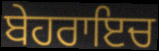
ਬੇਹਰਾਇਚ